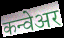
कन्वेअर